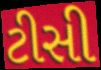
ટીસી